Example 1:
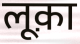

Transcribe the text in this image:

लूक़ा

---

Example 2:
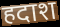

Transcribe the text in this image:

हदाश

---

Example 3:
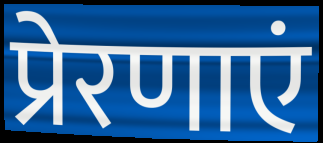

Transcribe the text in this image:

प्रेरणाएं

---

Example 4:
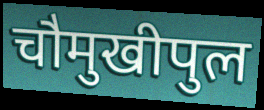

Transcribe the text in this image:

चौमुखीपुल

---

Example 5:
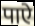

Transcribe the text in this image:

पाऐ